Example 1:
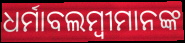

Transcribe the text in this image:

ଧର୍ମାବଲମ୍ବୀମାନଙ୍କ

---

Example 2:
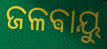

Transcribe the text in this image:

ଜଳଵାୟୁ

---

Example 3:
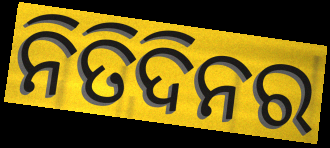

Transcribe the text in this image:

ନିତିଦିନର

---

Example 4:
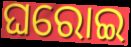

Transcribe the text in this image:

ଘରୋଇ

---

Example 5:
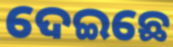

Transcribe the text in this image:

ଦେଇଛେ